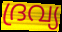
ദ്രവ്യ